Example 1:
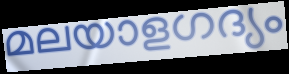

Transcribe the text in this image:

മലയാളഗദ്യം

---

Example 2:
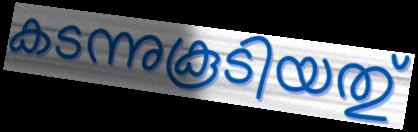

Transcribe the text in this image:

കടന്നുകൂടിയതു്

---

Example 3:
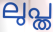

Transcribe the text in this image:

ലുപ്ത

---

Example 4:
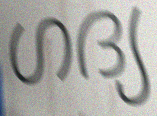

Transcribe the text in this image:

ഗദ്യ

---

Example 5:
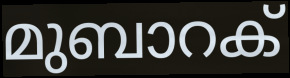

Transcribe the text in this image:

മുബാറക്